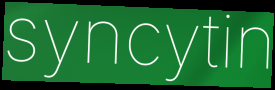
syncytin